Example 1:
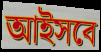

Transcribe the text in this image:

আইসবে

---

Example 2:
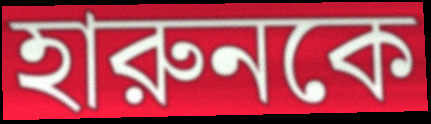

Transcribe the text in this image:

হারুনকে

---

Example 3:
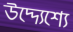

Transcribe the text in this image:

উদ্দ্যেশ্যে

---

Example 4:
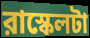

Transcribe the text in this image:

রাস্কেলটা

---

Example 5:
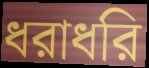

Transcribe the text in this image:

ধরাধরি